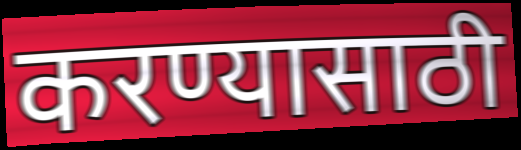
करण्यासाठी